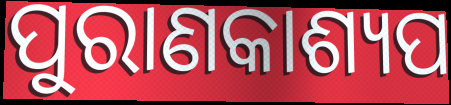
ପୁରାଣକାଶ୍ୟପ